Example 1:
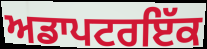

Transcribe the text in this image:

ਅਡਾਪਟਰਇੱਕ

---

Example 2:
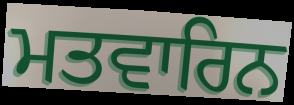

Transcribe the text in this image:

ਮਤਵਾਰਿਨ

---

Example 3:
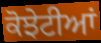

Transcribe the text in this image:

ਕੋਝੇਟੀਆਂ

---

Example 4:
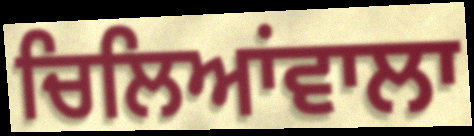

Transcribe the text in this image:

ਚਿਲਿਆਂਵਾਲਾ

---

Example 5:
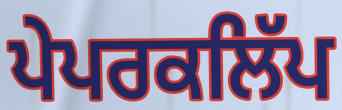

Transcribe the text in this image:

ਪੇਪਰਕਲਿੱਪ